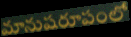
మానుషరూపంలో